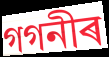
গগনীৰ